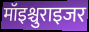
मॉइश्चुराइजर